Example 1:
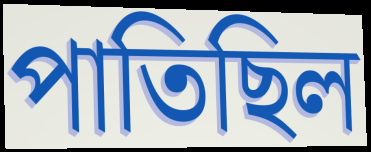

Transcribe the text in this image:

পাতিছিল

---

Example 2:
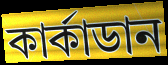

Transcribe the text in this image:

কাৰ্কাডান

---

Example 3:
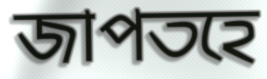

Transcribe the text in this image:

জাপতহে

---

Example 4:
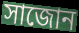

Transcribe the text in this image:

সাজোন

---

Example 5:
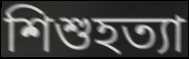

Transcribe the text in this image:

শিশুহত্যা